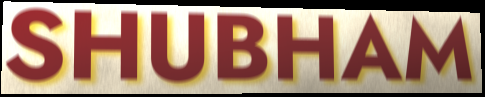
SHUBHAM